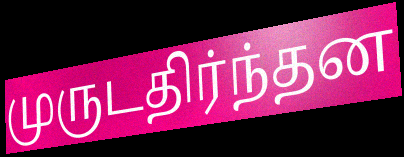
முருடதிர்ந்தன